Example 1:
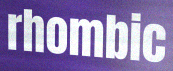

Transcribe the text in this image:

rhombic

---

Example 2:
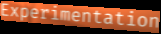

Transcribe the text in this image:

Experimentation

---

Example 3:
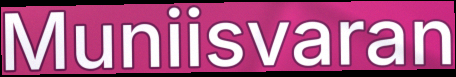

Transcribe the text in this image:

Muniisvaran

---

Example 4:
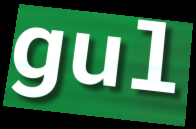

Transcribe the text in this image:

gul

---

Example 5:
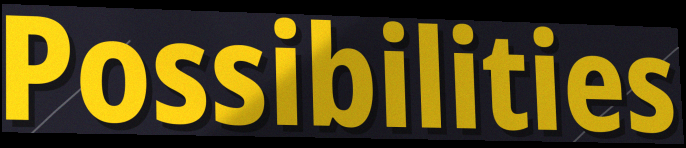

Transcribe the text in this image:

Possibilities